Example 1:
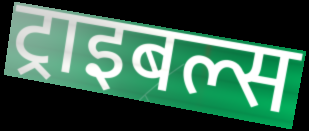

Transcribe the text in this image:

ट्राइबल्स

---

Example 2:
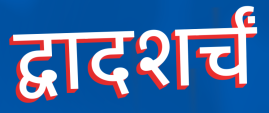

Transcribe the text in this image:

द्वादशर्चं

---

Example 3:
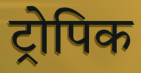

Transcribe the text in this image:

ट्रोपिक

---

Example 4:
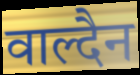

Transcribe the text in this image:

वाल्दैन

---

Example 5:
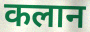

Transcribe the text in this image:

कलान